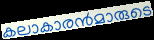
കലാകാരൻമാരുടെ